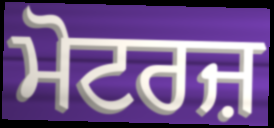
ਮੋਟਰਜ਼